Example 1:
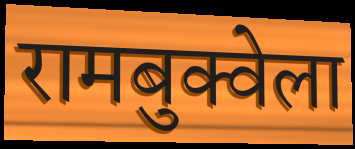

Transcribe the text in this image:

रामबुक्वेला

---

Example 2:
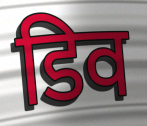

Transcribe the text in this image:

डिव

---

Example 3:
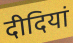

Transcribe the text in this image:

दीदियां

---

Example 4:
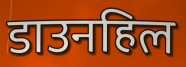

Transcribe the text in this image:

डाउनहिल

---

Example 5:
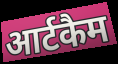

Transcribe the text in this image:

आर्टकैम